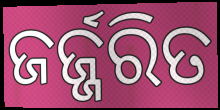
ଜର୍ଜ୍ଜରିତ